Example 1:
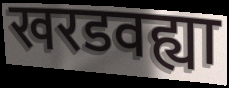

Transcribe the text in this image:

खरडवह्या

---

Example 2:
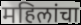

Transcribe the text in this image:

महिलांचा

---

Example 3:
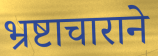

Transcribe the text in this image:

भ्रष्टाचाराने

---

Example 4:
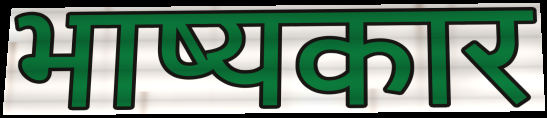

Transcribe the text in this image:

भाष्यकार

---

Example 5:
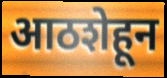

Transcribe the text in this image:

आठशेहून